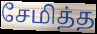
சேமித்த